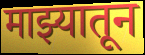
माझ्यातून